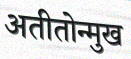
अतीतोन्मुख